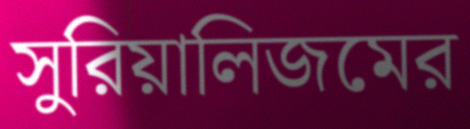
সুরিয়ালিজমের